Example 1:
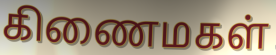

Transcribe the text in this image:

கிணைமகள்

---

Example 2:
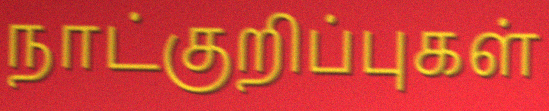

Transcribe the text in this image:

நாட்குறிப்புகள்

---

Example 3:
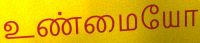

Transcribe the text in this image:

உண்மையோ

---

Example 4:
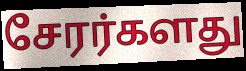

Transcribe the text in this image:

சேரர்களது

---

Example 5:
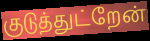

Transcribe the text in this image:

குடுத்துட்றேன்